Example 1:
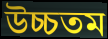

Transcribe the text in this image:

উচ্চতম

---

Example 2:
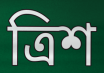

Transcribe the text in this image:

ত্রিশ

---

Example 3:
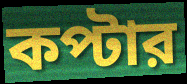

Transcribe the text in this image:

কপ্টার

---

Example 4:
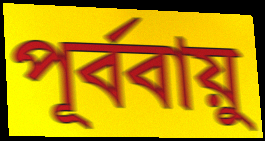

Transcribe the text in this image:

পূর্ববায়ু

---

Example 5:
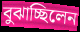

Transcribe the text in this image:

বুঝাচ্ছিলেন